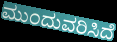
ಮುಂದುವರಿಸಿದೆ